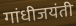
गांधीजयंती